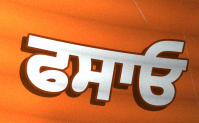
ਫਸਾਓ